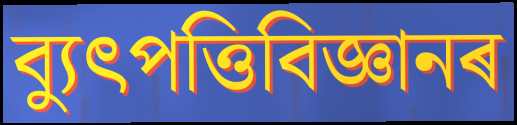
ব্যুৎপত্তিবিজ্ঞানৰ